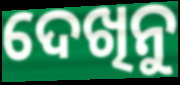
ଦେଖିନୁ